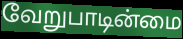
வேறுபாடின்மை